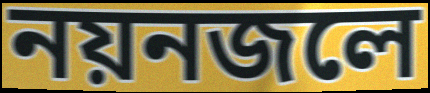
নয়নজলে